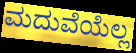
ಮದುವೆಯೆಲ್ಲ